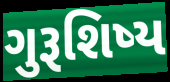
ગુરૂશિષ્ય